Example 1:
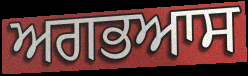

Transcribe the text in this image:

ਅਗਭਆਸ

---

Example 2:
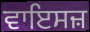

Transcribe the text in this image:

ਵਾਇਸਜ਼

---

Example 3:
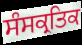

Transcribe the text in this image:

ਸੰਸਕ੍ਰਤਿਕ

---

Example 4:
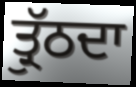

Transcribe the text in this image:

ਤ੍ਰੁੱਠਦਾ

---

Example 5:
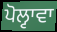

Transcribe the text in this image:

ਪੋਲ੍ਟਾਵਾ